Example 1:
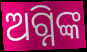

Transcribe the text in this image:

ଅଗ୍ନିଙ୍କ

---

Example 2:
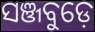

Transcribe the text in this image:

ସଞ୍ଜବୁଡ଼େ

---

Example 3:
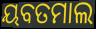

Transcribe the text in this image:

ୟବତମାଲ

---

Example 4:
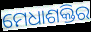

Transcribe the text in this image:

ମେଧାଶକ୍ତିର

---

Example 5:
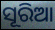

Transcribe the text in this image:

ସୂରିଆ